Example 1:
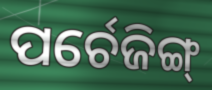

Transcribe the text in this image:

ପର୍ଚେଜିଙ୍ଗ୍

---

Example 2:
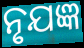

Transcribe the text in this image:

ନୃଯଜ୍ଞ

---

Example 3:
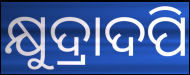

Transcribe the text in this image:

କ୍ଷୁଦ୍ରାଦପି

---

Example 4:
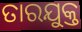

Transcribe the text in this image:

ତାରଯୁକ୍ତ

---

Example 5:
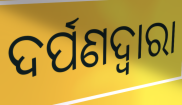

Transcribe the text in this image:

ଦର୍ପଣଦ୍ୱାରା